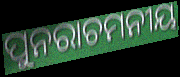
ପୁନରାଚମନୀୟ